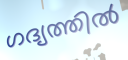
ഗദ്യത്തിൽ